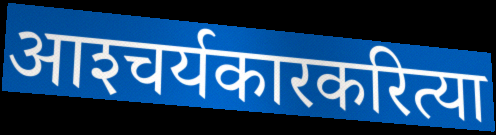
आश्‍चर्यकारकरित्या